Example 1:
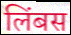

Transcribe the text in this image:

लिंबस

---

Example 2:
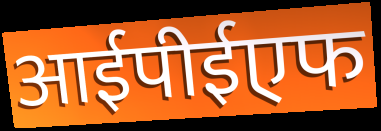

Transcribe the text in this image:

आईपीईएफ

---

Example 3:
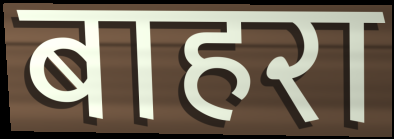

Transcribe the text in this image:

बाहरा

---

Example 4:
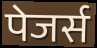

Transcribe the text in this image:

पेजर्स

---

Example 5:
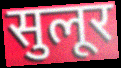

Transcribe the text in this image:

सुलूर